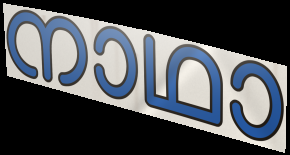
നാഥാ